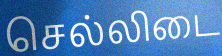
செல்லிடை